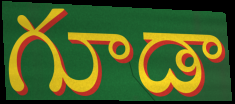
గూడా